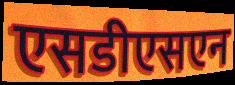
एसडीएसएन